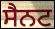
ਸੈਨਟ